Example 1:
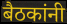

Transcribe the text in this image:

बैठकांनी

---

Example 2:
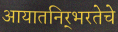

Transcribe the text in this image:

आयातनिर्भरतेचे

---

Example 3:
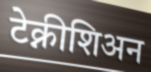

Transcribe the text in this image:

टेक्नीशिअन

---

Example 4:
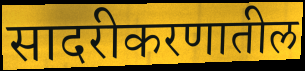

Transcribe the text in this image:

सादरीकरणातील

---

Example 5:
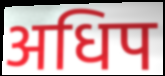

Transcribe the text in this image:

अधिप